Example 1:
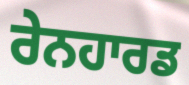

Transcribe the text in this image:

ਰੇਨਹਾਰਡ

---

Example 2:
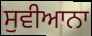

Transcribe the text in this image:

ਸੁਵੀਆਨਾ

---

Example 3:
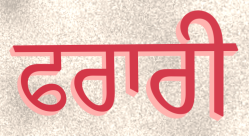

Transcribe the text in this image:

ਫਰਾਰੀ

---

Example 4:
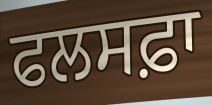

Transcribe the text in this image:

ਫਲਸਫ਼ਾ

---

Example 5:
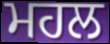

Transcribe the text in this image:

ਮਹਲ